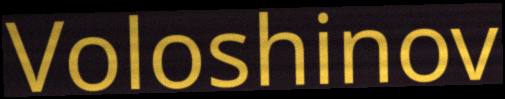
Voloshinov